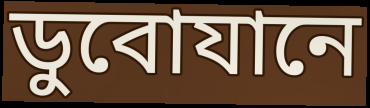
ডুবোযানে